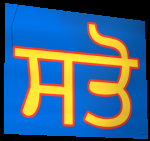
ਸਤੋ